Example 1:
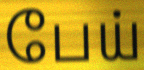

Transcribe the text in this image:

பேய்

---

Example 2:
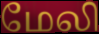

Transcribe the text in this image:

மேலி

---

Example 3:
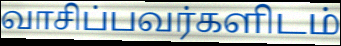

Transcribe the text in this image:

வாசிப்பவர்களிடம்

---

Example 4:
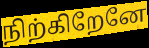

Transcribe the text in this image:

நிற்கிறேனே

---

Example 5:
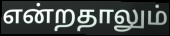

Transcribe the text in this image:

என்றதாலும்